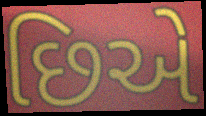
છિએ